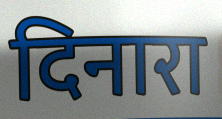
दिनारा